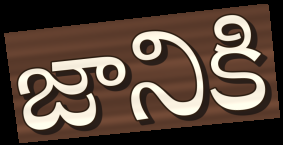
జానికి